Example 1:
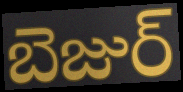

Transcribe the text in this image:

బెజుర్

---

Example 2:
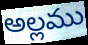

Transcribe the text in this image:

అల్లము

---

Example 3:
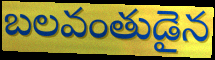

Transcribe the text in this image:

బలవంతుడైన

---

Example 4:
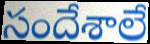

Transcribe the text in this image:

సందేశాలే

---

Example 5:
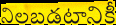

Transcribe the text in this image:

నిలబడటానికీ